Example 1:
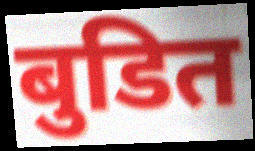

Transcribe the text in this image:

बुडित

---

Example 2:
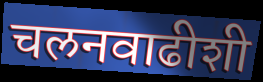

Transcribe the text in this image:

चलनवाढीशी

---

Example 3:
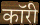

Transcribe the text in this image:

कॉरी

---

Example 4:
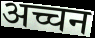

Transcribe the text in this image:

अच्चन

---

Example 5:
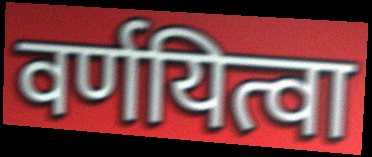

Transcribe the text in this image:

वर्णयित्वा